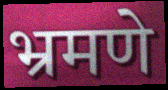
भ्रमणे